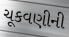
ચૂકવણીની